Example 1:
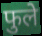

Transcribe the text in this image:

फुले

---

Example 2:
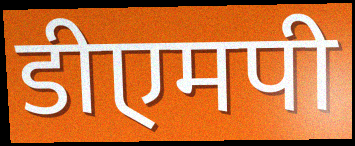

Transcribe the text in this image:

डीएमपी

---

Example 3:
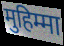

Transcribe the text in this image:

मुहिम्मा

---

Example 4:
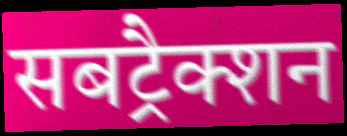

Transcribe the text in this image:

सबट्रैक्शन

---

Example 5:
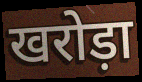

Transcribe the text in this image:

खरोड़ा